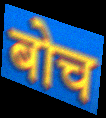
बोच